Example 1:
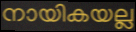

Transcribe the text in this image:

നായികയല്ല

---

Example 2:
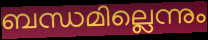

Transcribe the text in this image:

ബന്ധമില്ലെന്നും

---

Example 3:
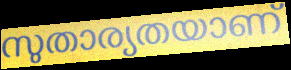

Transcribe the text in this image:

സുതാര്യതയാണ്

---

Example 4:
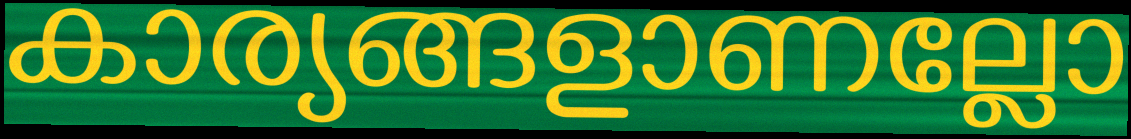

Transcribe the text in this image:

കാര്യങ്ങളാണല്ലോ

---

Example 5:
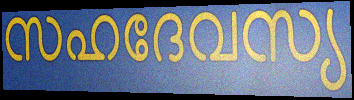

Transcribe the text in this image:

സഹദേവസ്യ